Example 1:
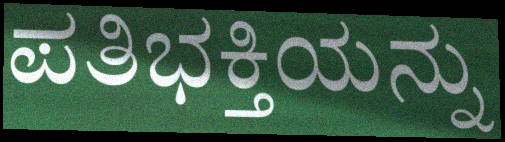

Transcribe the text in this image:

ಪತಿಭಕ್ತಿಯನ್ನು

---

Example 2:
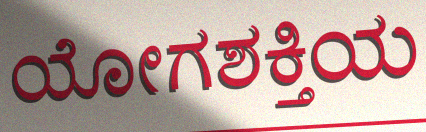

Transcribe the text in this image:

ಯೋಗಶಕ್ತಿಯ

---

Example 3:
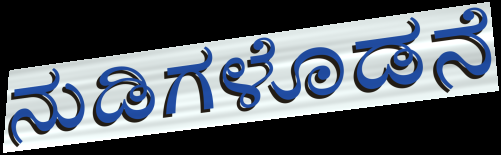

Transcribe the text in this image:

ನುಡಿಗಳೊಡನೆ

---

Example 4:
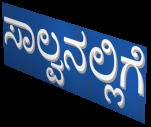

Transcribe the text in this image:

ಸಾಲ್ವನಲ್ಲಿಗೆ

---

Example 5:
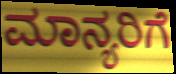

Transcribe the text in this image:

ಮಾನ್ಯರಿಗೆ